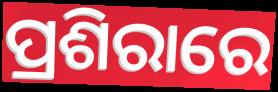
ପ୍ରଶିରାରେ